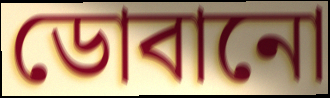
ডোবানো